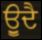
ਊੁਦੈ